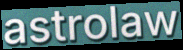
astrolaw